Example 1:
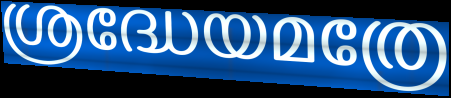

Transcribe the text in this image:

ശ്രദ്ധേയമത്രേ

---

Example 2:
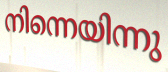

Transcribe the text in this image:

നിന്നെയിന്നു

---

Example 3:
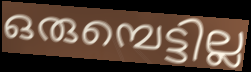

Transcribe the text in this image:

ഒരുമ്പെട്ടില്ല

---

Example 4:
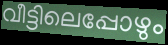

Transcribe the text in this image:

വീട്ടിലെപ്പോഴും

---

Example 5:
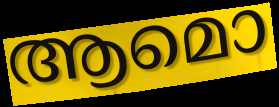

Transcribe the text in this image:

ആമൊ